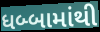
ધબ્બામાંથી